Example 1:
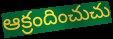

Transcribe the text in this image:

ఆక్రందించుచు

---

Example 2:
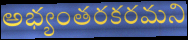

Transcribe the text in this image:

అభ్యంతరకరమని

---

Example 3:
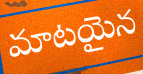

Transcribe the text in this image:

మాటయైన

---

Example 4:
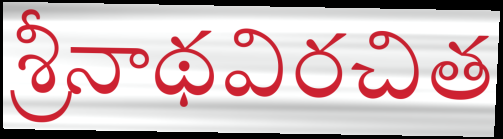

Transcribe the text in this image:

శ్రీనాథవిరచిత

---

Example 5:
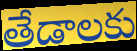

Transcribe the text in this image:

తేడాలకు